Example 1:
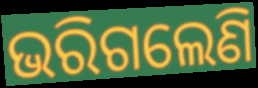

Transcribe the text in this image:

ଭରିଗଲେଣି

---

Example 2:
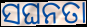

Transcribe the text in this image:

ସଘନତା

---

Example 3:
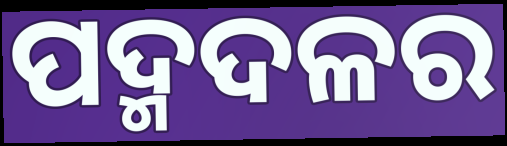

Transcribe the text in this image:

ପଦ୍ମଦଳର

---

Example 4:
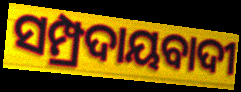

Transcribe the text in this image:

ସମ୍ପ୍ରଦାୟବାଦୀ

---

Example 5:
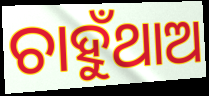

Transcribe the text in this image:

ଚାହୁଁଥାଅ